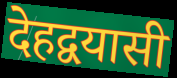
देहद्वयासी